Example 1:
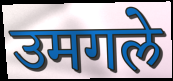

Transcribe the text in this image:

उमगले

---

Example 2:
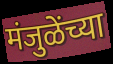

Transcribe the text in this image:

मंजुळेंच्या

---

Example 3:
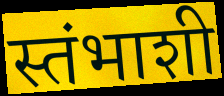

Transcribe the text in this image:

स्तंभाशी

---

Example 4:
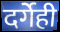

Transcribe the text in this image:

दर्गेही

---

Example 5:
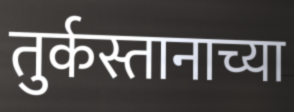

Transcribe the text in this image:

तुर्कस्तानाच्या